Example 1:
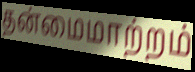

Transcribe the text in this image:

தன்மைமாற்றம்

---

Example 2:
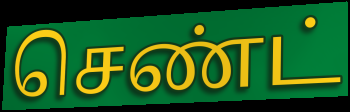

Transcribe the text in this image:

செண்ட்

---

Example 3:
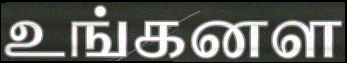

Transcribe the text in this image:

உங்கனள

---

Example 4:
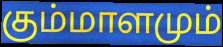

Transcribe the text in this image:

கும்மாளமும்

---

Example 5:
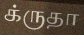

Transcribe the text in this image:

க்ருதா